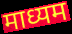
माध्यम